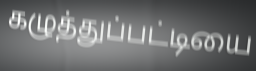
கழுத்துப்பட்டியை